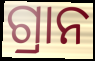
ଗ୍ରାନ